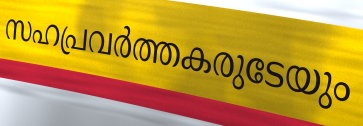
സഹപ്രവർത്തകരുടേയും